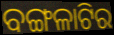
ବଙ୍ଗଳାଟିର